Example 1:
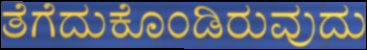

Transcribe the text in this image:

ತೆಗೆದುಕೊಂಡಿರುವುದು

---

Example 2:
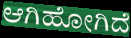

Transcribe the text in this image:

ಆಗಿಹೋಗಿದೆ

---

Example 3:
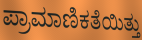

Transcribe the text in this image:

ಪ್ರಾಮಾಣಿಕತೆಯಿತ್ತು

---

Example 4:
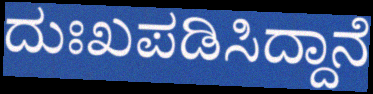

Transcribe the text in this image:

ದುಃಖಪಡಿಸಿದ್ದಾನೆ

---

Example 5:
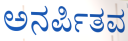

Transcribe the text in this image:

ಅನರ್ಪಿತವ